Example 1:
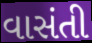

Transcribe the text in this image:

વાસંતી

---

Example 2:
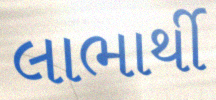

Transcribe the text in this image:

લાભાર્થી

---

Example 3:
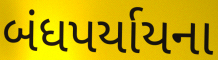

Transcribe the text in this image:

બંધપર્યાયના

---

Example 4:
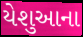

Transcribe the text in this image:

યેશુઆના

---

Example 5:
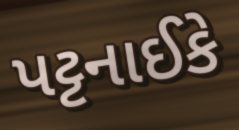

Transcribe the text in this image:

પટ્ટનાઈકે